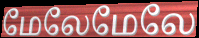
மேலேமேலே